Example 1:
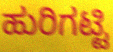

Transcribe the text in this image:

ಹುರಿಗಟ್ಟಿ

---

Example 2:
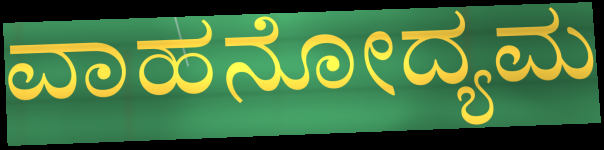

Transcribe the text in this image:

ವಾಹನೋದ್ಯಮ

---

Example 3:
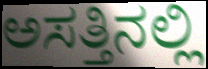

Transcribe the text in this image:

ಅಸತ್ತಿನಲ್ಲಿ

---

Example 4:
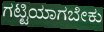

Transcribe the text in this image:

ಗಟ್ಟಿಯಾಗಬೇಕು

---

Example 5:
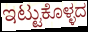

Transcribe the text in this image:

ಇಟ್ಟುಕೊಳ್ಳದ